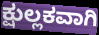
ಕ್ಷುಲ್ಲಕವಾಗಿ